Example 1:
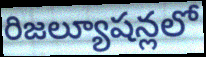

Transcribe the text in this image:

రిజల్యూషన్లలో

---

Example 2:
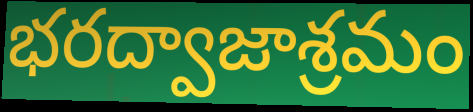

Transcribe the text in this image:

భరద్వాజాశ్రమం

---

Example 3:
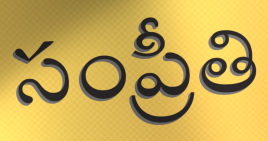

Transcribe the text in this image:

సంప్రీతి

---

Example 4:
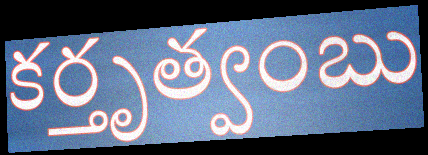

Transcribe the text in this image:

కర్తృత్వంబు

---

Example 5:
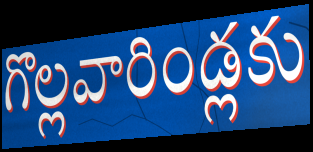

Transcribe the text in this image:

గొల్లవారిండ్లకు